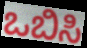
ಒಬಿಸಿ